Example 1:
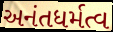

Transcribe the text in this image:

અનંતધર્મત્વ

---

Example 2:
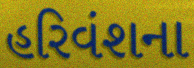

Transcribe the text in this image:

હરિવંશના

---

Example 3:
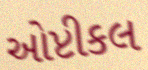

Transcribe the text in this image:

ઓપ્ટીકલ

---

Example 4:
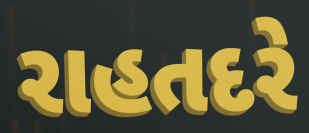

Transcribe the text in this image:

રાહતદરે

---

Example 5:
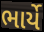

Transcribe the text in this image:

ભાર્યે